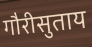
गौरीसुताय